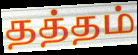
தத்தம்